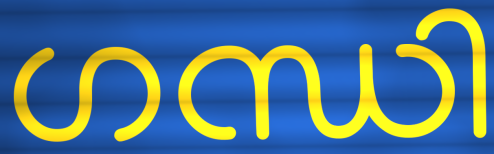
ഗന്ധി